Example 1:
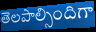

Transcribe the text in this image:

తెలపాల్సిందిగా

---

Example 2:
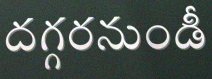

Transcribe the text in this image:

దగ్గరనుండీ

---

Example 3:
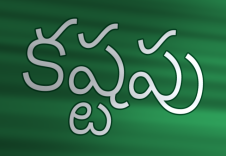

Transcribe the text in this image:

కష్టపు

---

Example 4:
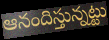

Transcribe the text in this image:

ఆనందిస్తున్నట్టు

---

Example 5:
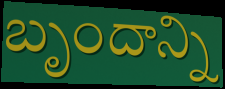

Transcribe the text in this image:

బృందాన్ని